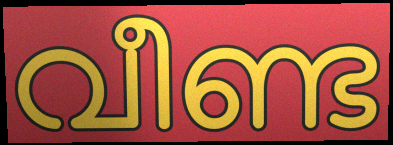
വീണ്ട